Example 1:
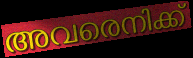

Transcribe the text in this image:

അവരെനിക്ക്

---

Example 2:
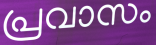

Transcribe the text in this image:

പ്രവാസം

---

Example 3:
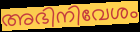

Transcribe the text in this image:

അഭിനിവേശം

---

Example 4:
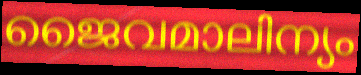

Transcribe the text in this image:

ജൈവമാലിന്യം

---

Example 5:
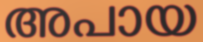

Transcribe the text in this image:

അപായ